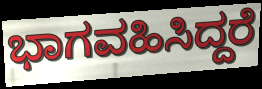
ಭಾಗವಹಿಸಿದ್ದರೆ